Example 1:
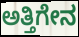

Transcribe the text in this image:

ಅತ್ತಿಗೇನ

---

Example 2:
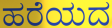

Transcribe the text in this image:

ಹರೆಯದ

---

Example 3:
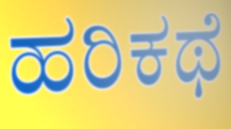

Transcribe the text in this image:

ಹರಿಕಥೆ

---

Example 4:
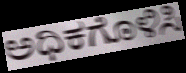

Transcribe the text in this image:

ಅಧಿಕಗೊಳಿಸಿ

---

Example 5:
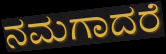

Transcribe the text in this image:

ನಮಗಾದರೆ